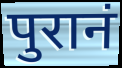
पुरानं